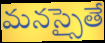
మనస్సైతే